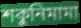
শকুনিমামা